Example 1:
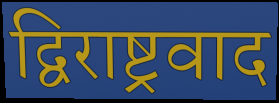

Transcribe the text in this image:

द्विराष्ट्रवाद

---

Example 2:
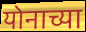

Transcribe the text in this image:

योनाच्या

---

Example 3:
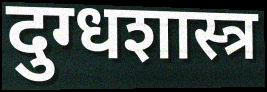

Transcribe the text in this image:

दुग्धशास्त्र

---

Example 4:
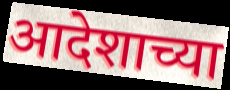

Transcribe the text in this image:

आदेशाच्या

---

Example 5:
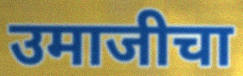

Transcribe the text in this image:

उमाजीचा